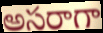
అసరాగా